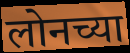
लोनच्या